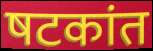
षटकांत